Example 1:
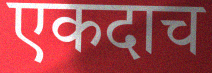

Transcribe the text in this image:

एकदाच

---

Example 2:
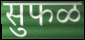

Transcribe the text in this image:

सुफळ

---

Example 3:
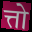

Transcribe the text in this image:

त्तो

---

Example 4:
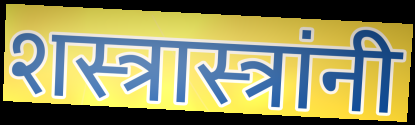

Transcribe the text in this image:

शस्त्रास्त्रांनी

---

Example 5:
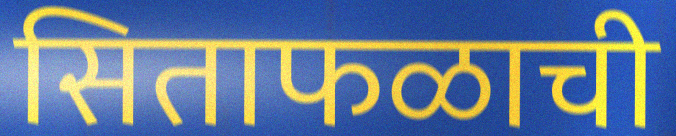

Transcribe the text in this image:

सिताफळाची